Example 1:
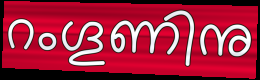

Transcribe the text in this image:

റംഗൂണിനു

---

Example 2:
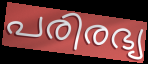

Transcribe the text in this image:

പരിരഭ്യ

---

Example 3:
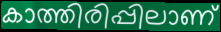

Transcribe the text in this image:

കാത്തിരിപ്പിലാണ്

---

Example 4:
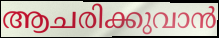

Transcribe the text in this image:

ആചരിക്കുവാൻ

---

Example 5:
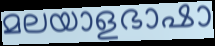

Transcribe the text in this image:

മലയാളഭാഷാ